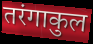
तरंगाकुल